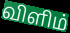
விளிம்